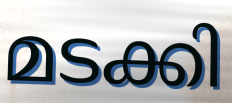
മടക്കി